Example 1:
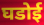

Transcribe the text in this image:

घडोई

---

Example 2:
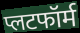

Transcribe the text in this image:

प्लटफॉर्म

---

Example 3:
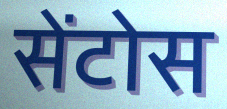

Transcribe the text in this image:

सेंटोस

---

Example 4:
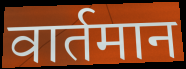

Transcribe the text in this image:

वार्तमान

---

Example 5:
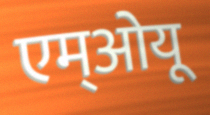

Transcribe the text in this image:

एम्ओयू